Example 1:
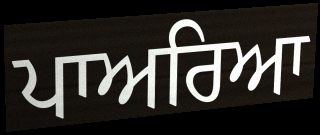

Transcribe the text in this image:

ਪਾਅਰਿਆ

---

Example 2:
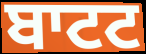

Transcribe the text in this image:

ਬਾਟਟ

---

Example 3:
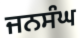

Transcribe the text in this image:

ਜਨਸੰਘ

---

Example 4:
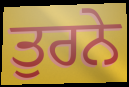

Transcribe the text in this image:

ਤੁਰਨੇ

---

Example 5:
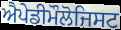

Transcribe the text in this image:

ਐਪੇਡੀਮੌਲੋਜਿਸਟ